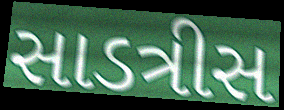
સાડત્રીસ